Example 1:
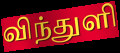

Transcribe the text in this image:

விந்துளி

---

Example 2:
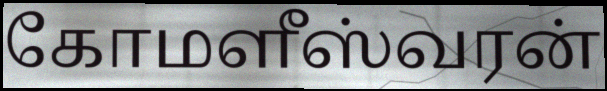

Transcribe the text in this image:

கோமளீஸ்வரன்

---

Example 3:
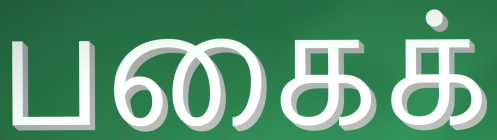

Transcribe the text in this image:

பகைக்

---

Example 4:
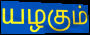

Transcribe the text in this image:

யழகும்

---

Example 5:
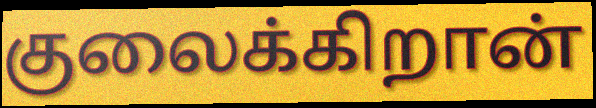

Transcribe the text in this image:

குலைக்கிறான்